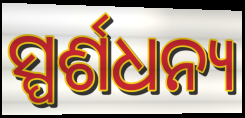
ସ୍ପର୍ଶଧନ୍ୟ